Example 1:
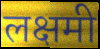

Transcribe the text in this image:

लक्षमी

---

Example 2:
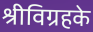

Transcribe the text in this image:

श्रीविग्रहके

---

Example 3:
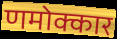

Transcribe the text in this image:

णमोक्कार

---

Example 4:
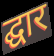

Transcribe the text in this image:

द्घार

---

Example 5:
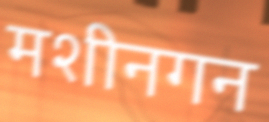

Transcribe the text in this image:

मशीनगन